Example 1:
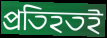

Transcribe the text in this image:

প্রতিহতই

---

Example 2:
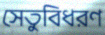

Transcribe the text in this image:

সেতুবিধরণ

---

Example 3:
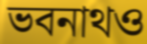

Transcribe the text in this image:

ভবনাথও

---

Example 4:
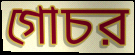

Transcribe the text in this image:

গোচর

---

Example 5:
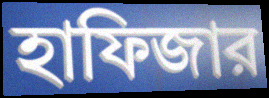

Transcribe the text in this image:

হাফিজার